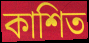
কাশিত